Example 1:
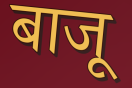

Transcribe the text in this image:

बाजू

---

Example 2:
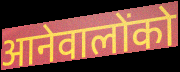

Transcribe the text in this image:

आनेवालोंको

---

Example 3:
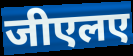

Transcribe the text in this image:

जीएलए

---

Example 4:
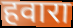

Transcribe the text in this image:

हवारा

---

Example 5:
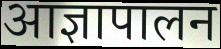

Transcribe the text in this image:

आज्ञापालन